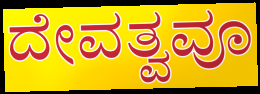
ದೇವತ್ವವೂ